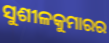
ସୁଶୀଳକୁମାରର